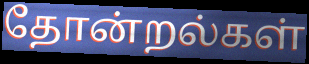
தோன்றல்கள்